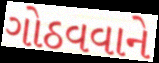
ગોઠવવાને